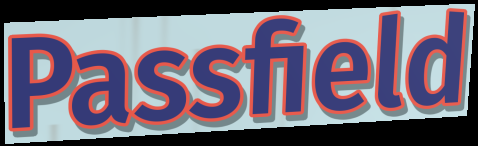
Passfield